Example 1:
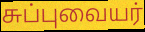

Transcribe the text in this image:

சுப்புவையர்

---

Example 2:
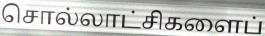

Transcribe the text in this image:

சொல்லாட்சிகளைப்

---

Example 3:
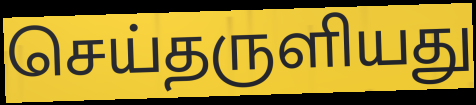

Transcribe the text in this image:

செய்தருளியது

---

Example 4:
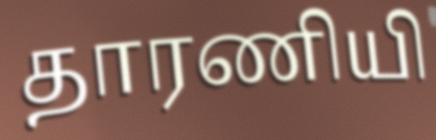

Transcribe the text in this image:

தாரணியி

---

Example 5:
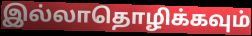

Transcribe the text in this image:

இல்லாதொழிக்கவும்